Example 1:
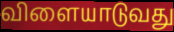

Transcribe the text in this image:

விளையாடுவது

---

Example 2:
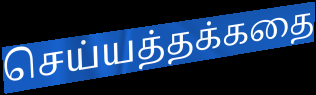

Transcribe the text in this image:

செய்யத்தக்கதை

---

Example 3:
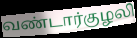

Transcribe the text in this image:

வண்டார்குழலி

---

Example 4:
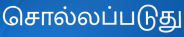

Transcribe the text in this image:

சொல்லப்படுது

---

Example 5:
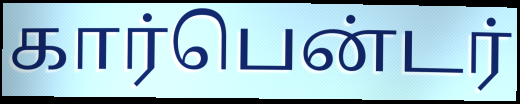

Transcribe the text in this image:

கார்பென்டர்